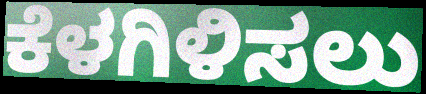
ಕೆಳಗಿಳಿಸಲು